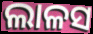
ଲାଳସ